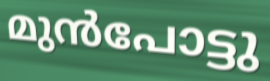
മുൻപോട്ടു